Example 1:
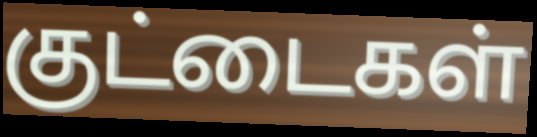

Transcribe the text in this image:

குட்டைகள்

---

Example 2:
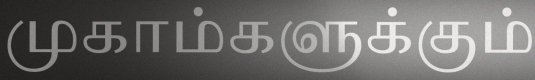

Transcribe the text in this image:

முகாம்களுக்கும்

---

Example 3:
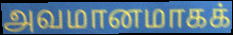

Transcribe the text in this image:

அவமானமாகக்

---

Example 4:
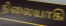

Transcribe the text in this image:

நிலையாகி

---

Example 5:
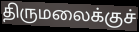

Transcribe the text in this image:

திருமலைக்குச்